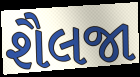
શૈલજા